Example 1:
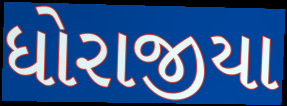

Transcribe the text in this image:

ધોરાજીયા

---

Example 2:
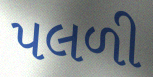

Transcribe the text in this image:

પલળી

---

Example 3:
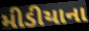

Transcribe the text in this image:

મીડીયાના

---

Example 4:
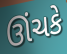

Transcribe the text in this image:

ઊંચકે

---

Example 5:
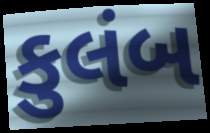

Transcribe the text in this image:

કુલંબ